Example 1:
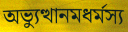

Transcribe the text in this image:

অভ্যুত্থানমধর্মস্য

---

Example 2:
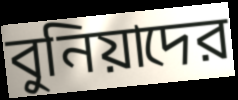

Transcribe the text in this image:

বুনিয়াদের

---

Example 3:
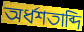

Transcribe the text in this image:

অর্ধশতাব্দি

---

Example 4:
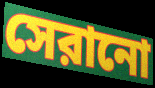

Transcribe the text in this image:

সেরানো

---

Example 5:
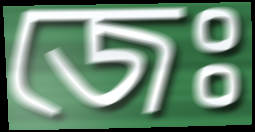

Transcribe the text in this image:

জেঃ